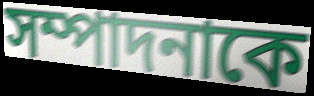
সম্পাদনাকে